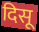
दिसू